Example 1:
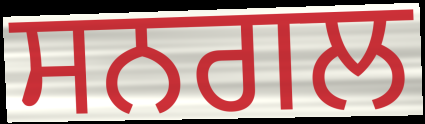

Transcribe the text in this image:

ਸਨਗਲ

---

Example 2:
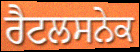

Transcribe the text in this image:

ਰੈਟਲਸਨੇਕ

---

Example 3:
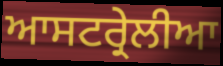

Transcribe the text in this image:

ਆਸਟਰ੍ਰੇਲੀਆ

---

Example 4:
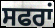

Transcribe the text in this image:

ਸਫਰਾਂ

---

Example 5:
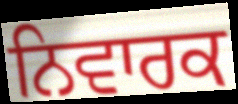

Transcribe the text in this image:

ਨਿਵਾਰਕ